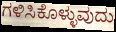
ಗಳಿಸಿಕೊಳ್ಳುವುದು